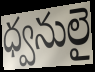
ధ్వనులై